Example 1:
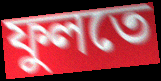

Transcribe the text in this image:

ফুলতে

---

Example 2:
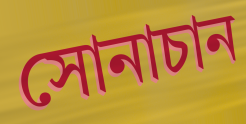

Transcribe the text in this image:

সোনাচান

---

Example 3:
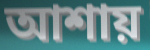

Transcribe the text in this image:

আশায়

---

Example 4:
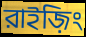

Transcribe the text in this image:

রাইজ়িং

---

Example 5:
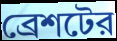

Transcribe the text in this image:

ব্রেশটের